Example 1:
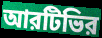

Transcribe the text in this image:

আরটিভির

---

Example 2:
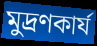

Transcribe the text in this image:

মুদ্রণকার্য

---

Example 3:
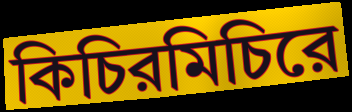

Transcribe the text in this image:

কিচিরমিচিরে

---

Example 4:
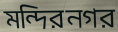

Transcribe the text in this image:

মন্দিরনগর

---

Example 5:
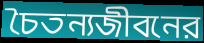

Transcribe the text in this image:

চৈতন্যজীবনের